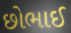
છોભાઈ